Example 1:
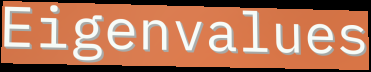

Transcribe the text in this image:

Eigenvalues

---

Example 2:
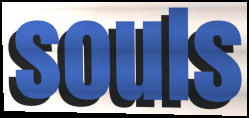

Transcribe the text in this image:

souls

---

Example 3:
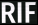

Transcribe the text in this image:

RIF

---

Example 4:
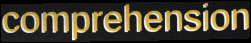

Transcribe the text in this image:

comprehension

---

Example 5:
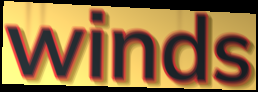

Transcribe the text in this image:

winds